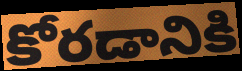
కోరడానికి